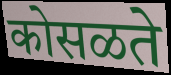
कोसळते